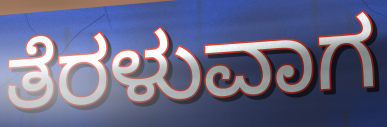
ತೆರಳುವಾಗ